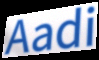
Aadi